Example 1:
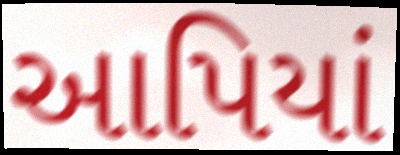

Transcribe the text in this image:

આપિયાં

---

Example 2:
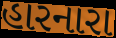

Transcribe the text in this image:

હારનારા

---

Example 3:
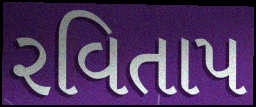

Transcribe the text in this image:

રવિતાપ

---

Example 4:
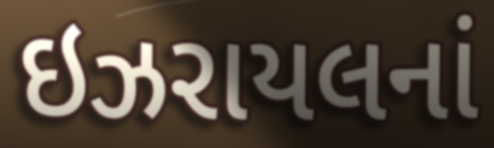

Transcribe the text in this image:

ઇઝરાયલનાં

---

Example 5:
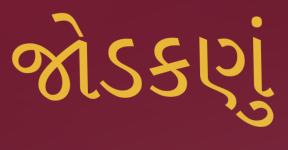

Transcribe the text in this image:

જોડકણું